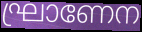
ഘ്രാണേന